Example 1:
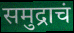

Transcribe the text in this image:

समुद्राचं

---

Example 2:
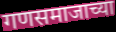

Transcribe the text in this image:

गणसमाजाच्या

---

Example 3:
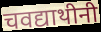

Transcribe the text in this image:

चवद्याथीनी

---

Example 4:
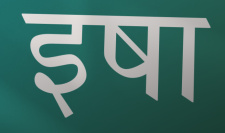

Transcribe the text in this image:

इषा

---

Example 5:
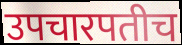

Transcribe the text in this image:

उपचारपतीच